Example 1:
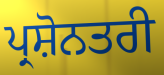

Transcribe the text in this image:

ਪ੍ਰਸ਼ੋਨਤਰੀ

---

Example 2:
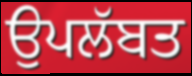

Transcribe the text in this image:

ਉਪਲੱਬਤ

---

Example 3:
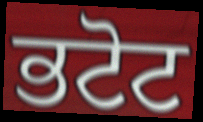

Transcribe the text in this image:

ਭਟੋਟ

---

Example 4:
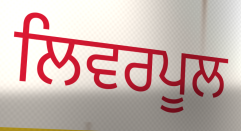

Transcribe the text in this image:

ਲਿਵਰਪੂਲ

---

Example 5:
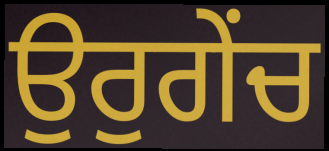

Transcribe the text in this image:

ਉਰੁਗੇਂਚ